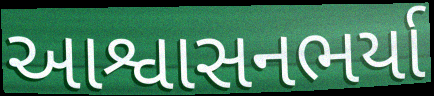
આશ્વાસનભર્યા